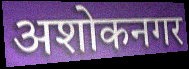
अशोकनगर